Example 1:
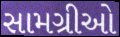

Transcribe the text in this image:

સામગ્રીઓ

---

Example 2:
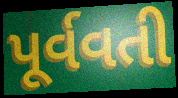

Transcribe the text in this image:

પૂર્વવતી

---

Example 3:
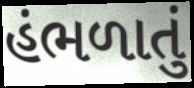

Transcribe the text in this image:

હંભળાતું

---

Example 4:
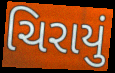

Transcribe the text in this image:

ચિરાયું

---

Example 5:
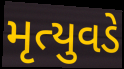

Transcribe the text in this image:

મૃત્યુવડે